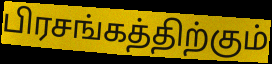
பிரசங்கத்திற்கும்